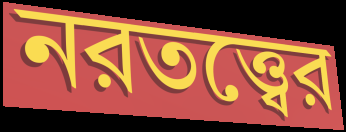
নরতত্ত্বের